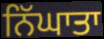
ਨਿੱਘਾਤਾ